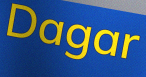
Dagar